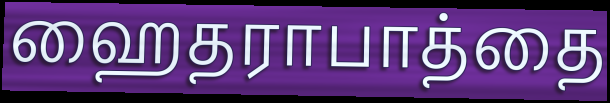
ஹைதராபாத்தை